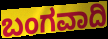
ಬಂಗವಾದಿ